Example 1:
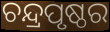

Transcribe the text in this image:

ଚନ୍ଦ୍ରପୃଷ୍ଠର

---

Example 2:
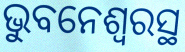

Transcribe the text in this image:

ଭୁବନେଶ୍ଵରସ୍ଥ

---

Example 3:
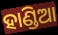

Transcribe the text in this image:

ହାଣ୍ଡିଆ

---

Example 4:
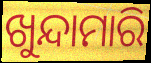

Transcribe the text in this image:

ଖୁନ୍ଦାମାରି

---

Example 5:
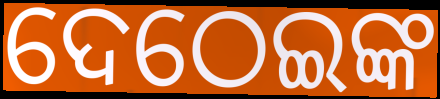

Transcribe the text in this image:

ଦେଠେଇଙ୍କ